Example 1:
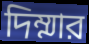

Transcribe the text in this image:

দিম্মার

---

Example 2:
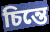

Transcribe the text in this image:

চিন্তে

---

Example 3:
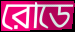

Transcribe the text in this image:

রোডে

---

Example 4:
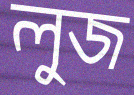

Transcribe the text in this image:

লুজ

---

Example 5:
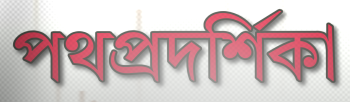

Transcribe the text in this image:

পথপ্রদর্শিকা